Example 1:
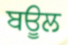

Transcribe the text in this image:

ਬਊਲ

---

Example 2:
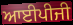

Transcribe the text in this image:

ਆਈਪੀਜੀ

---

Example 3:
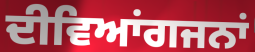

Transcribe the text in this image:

ਦੀਵਿਆਂਗਜਨਾਂ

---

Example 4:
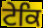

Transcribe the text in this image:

ਟੇਕਿ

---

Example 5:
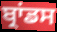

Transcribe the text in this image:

ਬ੍ਰਾਂਡਸ